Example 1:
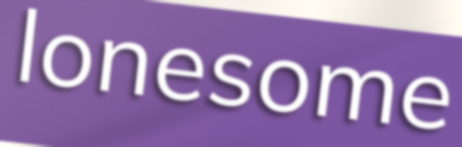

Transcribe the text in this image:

lonesome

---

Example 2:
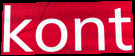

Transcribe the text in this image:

kont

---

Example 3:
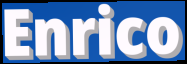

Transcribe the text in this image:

Enrico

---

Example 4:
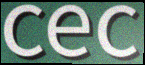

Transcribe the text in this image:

cec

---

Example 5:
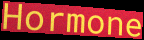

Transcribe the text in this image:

Hormone